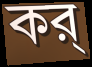
কর্